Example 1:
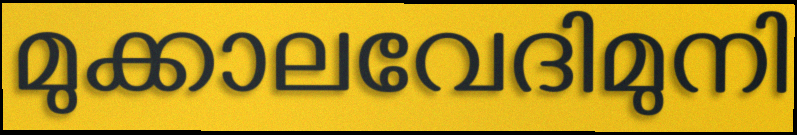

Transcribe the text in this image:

മുക്കാലവേദിമുനി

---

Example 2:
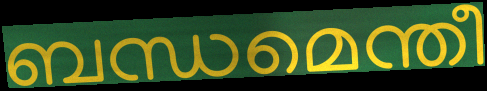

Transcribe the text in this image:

ബന്ധമെന്തീ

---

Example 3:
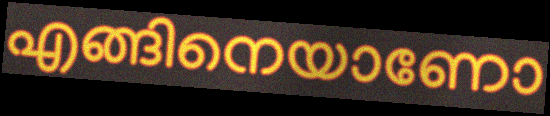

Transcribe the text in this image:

എങ്ങിനെയാണോ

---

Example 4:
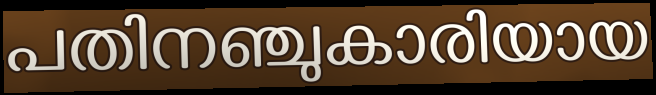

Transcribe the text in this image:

പതിനഞ്ചുകാരിയായ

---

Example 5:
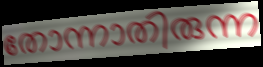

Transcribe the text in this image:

തോന്നാതിരുന്ന